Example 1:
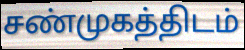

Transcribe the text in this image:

சண்முகத்திடம்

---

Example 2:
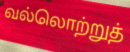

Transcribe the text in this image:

வல்லொற்றுத்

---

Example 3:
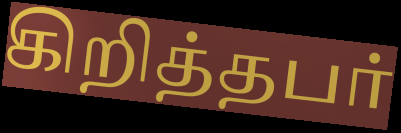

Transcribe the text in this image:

கிறித்தபர்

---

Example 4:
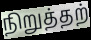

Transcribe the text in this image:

நிறுத்தற்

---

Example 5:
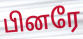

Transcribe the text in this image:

பினரே